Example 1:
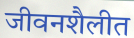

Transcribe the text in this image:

जीवनशैलीत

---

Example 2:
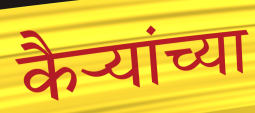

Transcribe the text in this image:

कैऱ्यांच्या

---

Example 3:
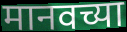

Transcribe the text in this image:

मानवच्या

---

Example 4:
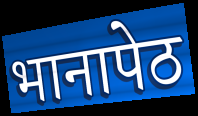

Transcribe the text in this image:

भानापेठ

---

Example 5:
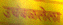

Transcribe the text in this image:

उचंबळलेला